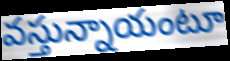
వస్తున్నాయంటూ